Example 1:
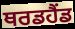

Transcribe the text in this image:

ਥਰਡਹੈਂਡ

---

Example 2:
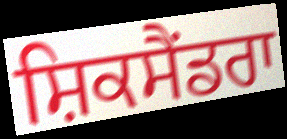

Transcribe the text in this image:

ਸ਼ਿਕਸੈਂਡਰਾ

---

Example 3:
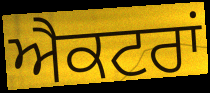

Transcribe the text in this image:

ਐਕਟਰਾਂ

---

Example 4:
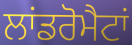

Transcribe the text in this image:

ਲਾਂਡਰੋਮੈਟਾਂ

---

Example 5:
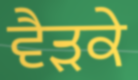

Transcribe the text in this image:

ਵੈੜਕੇ